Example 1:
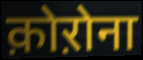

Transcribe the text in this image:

क़ोऱोना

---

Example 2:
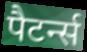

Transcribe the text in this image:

पैटर्न्स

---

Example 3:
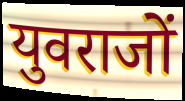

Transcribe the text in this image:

युवराजों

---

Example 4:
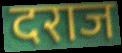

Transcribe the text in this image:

दराज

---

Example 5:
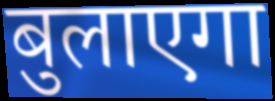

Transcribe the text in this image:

बुलाएगा